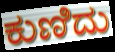
ಕುಣಿದು